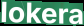
lokera